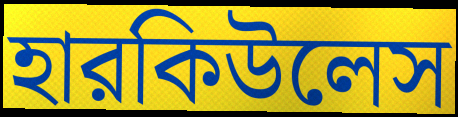
হারকিউলেস